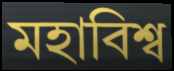
মহাবিশ্ব